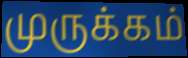
முருக்கம்